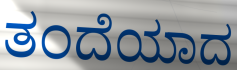
ತಂದೆಯಾದ